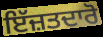
ਇੱਜ਼ਤਦਾਰੋ